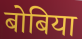
बोबिया